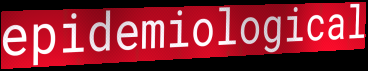
epidemiological